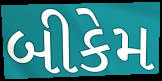
બીકેમ